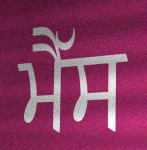
ਮੈੱਸ